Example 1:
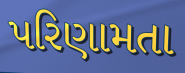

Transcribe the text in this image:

પરિણામતા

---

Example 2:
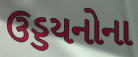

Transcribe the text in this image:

ઉડ્ડયનોના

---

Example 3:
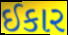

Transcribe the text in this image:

ઈકાર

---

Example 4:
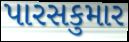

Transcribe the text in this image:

પારસકુમાર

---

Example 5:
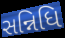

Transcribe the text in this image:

સન્નિધિ